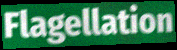
Flagellation